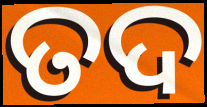
ତଦ